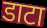
डाटा